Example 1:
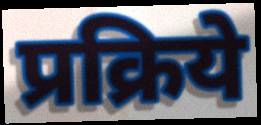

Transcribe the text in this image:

प्रक्रिये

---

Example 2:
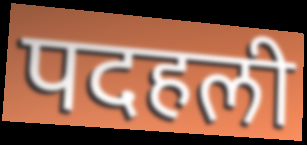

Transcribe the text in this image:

पदहली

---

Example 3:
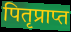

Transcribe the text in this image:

पितृप्राप्त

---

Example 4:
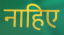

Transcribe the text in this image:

नाहिए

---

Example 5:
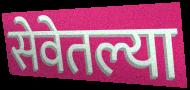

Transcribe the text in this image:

सेवेतल्या